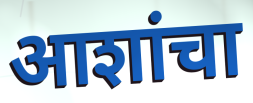
आशांचा